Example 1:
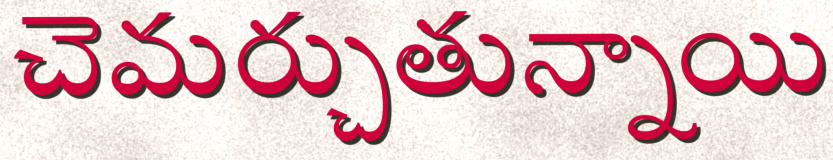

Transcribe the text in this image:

చెమర్చుతున్నాయి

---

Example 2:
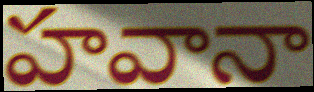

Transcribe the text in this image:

హవానా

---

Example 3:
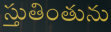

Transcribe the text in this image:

స్తుతింతును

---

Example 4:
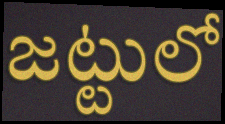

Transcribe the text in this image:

జట్టులో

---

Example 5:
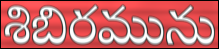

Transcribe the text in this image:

శిబిరమును